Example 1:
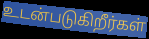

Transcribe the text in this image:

உடன்படுகிறீர்கள்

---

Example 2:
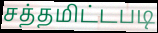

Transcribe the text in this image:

சத்தமிட்டபடி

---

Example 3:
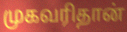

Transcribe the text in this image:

முகவரிதான்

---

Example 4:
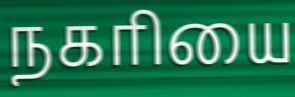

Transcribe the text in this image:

நகரியை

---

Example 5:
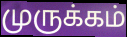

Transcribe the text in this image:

முருக்கம்